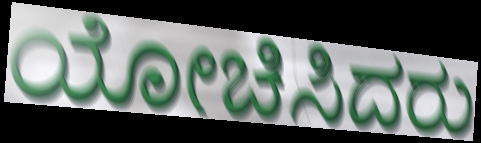
ಯೋಚಿಸಿದರು